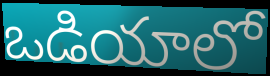
ఒడియాలో